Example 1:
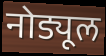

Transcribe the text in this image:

नोड्यूल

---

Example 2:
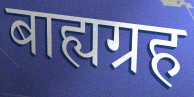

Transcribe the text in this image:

बाह्यग्रह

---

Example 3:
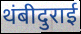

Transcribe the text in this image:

थंबीदुराई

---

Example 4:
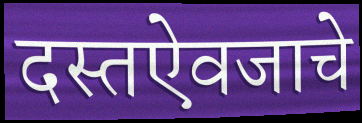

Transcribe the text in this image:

दस्तऐवजाचे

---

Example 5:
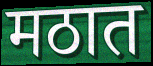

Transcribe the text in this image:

मठात